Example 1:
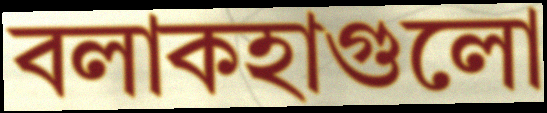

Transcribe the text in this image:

বলাকহাগুলো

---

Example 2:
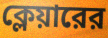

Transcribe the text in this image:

ক্লেয়ারের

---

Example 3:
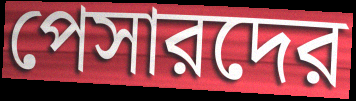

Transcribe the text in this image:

পেসারদের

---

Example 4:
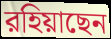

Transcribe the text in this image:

রহিয়াছেন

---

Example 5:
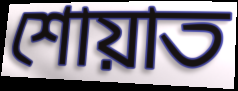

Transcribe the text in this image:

শোয়াত